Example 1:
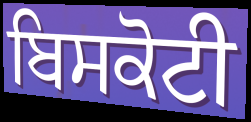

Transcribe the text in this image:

ਬਿਸਕੋਟੀ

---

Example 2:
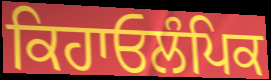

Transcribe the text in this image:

ਕਿਹਾਓਲੰਪਿਕ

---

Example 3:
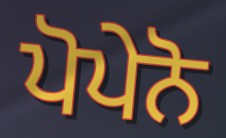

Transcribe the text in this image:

ਪੋਪੇਨੋ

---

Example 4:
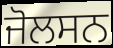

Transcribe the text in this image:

ਜੋਲਸਨ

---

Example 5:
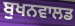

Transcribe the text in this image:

ਬੁਖਨਵਾਲਡ